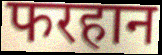
फरहान